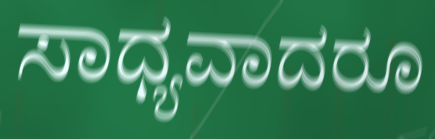
ಸಾಧ್ಯವಾದರೂ